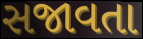
સજાવતા